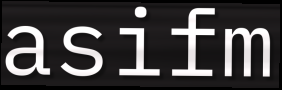
asifm